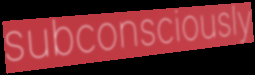
subconsciously